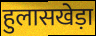
हुलासखेड़ा